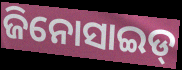
ଜିନୋସାଇଡ୍